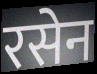
रसेन